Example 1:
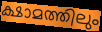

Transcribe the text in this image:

ക്ഷാമത്തിലും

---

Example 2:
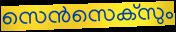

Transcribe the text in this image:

സെൻസെക്സും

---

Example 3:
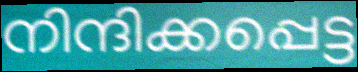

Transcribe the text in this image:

നിന്ദിക്കപ്പെട്ട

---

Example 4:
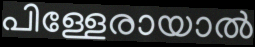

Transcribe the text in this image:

പിള്ളേരായാൽ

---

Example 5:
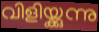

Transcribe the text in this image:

വിളിയ്ക്കുന്നു